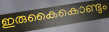
ഇരുകൈകൊണ്ടും